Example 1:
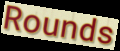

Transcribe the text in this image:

Rounds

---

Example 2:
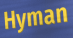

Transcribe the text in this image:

Hyman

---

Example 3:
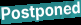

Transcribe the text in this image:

Postponed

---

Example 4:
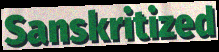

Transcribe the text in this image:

Sanskritized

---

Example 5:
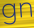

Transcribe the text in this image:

gn